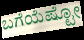
ಬಗೆಯೆಷ್ಟೋ